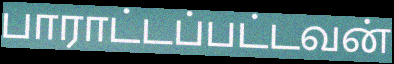
பாராட்டப்பட்டவன்